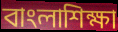
বাংলাশিক্ষা